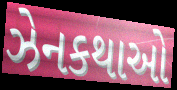
ઝેનકથાઓ